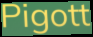
Pigott